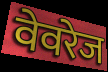
वेवरेज